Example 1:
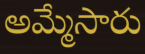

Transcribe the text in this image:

అమ్మేసారు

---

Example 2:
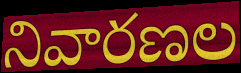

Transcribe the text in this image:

నివారణల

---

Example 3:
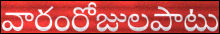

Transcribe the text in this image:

వారంరోజులపాటు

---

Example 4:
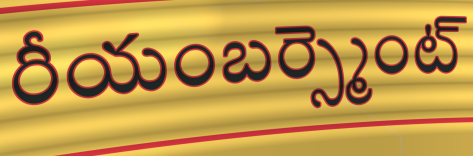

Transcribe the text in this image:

రీయంబర్స్మెంట్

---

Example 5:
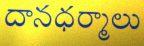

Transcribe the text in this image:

దానధర్మాలు